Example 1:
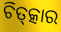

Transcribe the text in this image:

ଚିତ୍‌ତ୍କାର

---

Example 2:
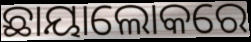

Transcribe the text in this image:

ଛାୟାଲୋକରେ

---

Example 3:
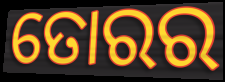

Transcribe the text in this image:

ତୋରର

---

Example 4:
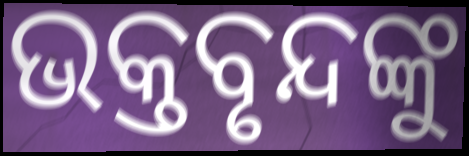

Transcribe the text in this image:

ଭକ୍ତବୃନ୍ଦଙ୍କୁ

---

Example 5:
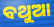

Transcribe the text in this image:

ବଥୁଆ